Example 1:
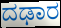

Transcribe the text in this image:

ದಢಾರ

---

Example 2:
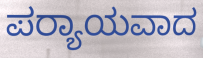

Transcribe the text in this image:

ಪರ‍್ಯಾಯವಾದ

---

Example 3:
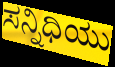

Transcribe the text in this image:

ಸನ್ನಿಧಿಯು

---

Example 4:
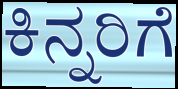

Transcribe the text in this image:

ಕಿನ್ನರಿಗೆ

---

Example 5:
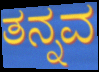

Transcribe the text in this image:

ತನ್ನವ